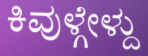
ಕಿವುಳ್ಗೇಳ್ದು